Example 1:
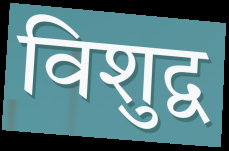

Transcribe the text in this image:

विशुद्व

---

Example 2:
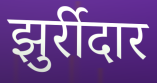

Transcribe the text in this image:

झुर्रीदार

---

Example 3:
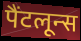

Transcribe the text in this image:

पैंटलून्स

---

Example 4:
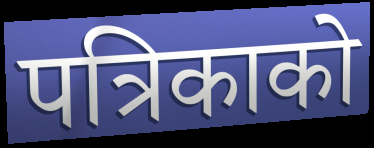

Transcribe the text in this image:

पत्रिकाको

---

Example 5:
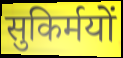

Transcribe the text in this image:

सुकिर्मयों